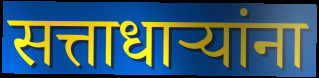
सत्ताधाऱ्यांना